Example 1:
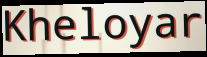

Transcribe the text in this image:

Kheloyar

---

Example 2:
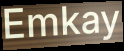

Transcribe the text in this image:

Emkay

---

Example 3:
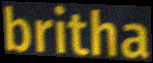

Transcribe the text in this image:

britha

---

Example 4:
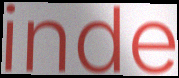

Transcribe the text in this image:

inde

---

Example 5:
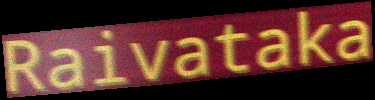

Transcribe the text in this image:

Raivataka